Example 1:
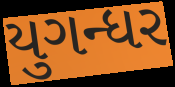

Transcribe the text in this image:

યુગન્ધર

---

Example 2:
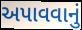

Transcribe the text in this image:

અપાવવાનું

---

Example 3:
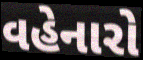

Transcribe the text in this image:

વહેનારો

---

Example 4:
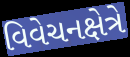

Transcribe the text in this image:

વિવેચનક્ષેત્રે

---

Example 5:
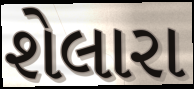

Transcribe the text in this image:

શેલારા